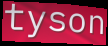
tyson